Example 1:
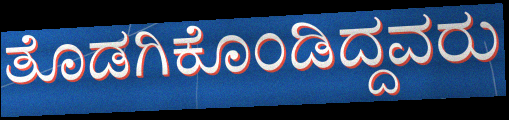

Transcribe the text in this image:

ತೊಡಗಿಕೊಂಡಿದ್ದವರು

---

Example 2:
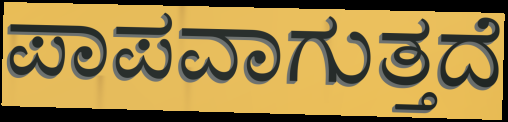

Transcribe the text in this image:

ಪಾಪವಾಗುತ್ತದೆ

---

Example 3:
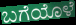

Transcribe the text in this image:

ಬಗೆಯೊಳೆ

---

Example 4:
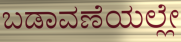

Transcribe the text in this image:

ಬಡಾವಣೆಯಲ್ಲೇ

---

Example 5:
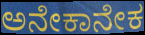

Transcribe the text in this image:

ಅನೇಕಾನೇಕ